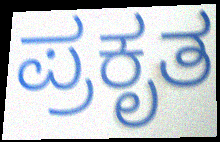
ಪ್ರಕೃತ